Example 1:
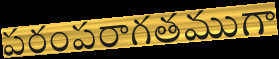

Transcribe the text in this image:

పరంపరాగతముగా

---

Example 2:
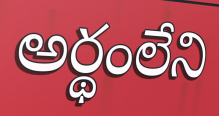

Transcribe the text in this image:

అర్థంలేని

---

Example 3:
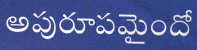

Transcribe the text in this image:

అపురూపమైందో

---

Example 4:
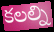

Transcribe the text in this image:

కలల్ని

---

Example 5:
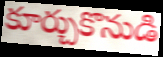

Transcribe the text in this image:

కూర్చుకొనుడి